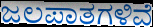
ಜಲಪಾತಗಳಿವೆ